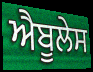
ਐਬੂਲੇਸ